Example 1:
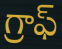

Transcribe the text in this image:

గ్రాఫ్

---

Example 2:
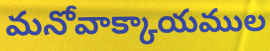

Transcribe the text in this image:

మనోవాక్కాయముల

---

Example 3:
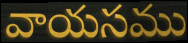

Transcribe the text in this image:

వాయసము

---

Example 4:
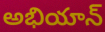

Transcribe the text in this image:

అభియాన్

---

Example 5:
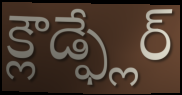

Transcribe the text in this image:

క్లౌడ్ఫ్లేర్